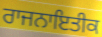
ਰਾਜਨਾਇਤੀਕ